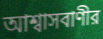
আশ্বাসবাণীর